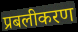
प्रबलीकरण